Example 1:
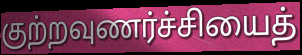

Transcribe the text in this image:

குற்றவுணர்ச்சியைத்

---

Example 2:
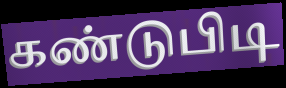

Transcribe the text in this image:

கண்டுபிடி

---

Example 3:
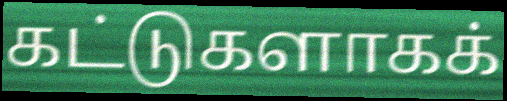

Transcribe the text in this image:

கட்டுகளாகக்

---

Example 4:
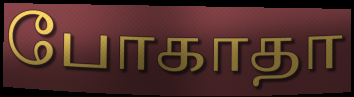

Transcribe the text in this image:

போகாதா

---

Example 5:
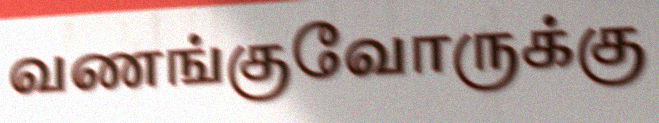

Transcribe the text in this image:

வணங்குவோருக்கு